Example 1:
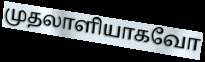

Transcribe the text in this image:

முதலாளியாகவோ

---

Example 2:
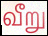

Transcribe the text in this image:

வீறு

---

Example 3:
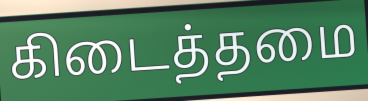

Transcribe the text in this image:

கிடைத்தமை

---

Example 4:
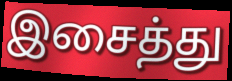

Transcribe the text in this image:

இசைத்து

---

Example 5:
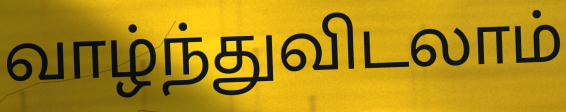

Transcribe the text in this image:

வாழ்ந்துவிடலாம்